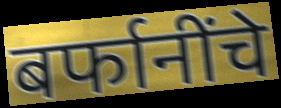
बर्फानींचे